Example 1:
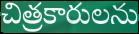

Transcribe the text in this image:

చిత్రకారులను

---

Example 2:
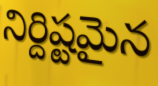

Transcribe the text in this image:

నిర్దిష్టమైన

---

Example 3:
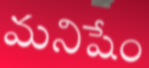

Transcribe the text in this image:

మనిషేం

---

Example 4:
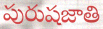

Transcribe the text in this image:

పురుషజాతి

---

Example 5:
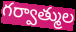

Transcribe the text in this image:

గర్వాత్ముల